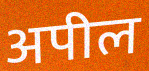
अपील